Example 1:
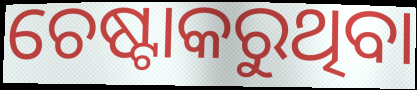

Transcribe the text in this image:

ଚେଷ୍ଟାକରୁଥିବା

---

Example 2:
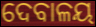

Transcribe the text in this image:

ଦେବାଳୟ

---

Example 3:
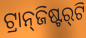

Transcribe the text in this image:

ଟ୍ରାନ୍‌ଜିଷ୍ଟର୍‌ଟି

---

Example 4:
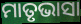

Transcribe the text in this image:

ମାତୃଭାସା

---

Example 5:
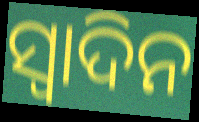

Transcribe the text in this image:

ସ୍ବାଦିନ